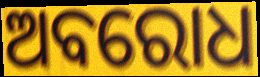
ଅବରୋଧ